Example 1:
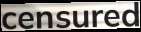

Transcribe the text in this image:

censured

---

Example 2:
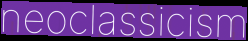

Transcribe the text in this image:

neoclassicism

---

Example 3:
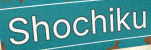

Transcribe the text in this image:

Shochiku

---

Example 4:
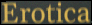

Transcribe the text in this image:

Erotica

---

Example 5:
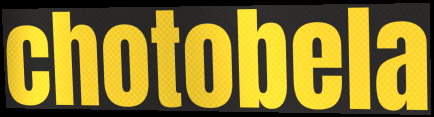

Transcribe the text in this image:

chotobela